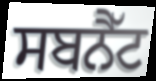
ਸਬਨੈੱਟ